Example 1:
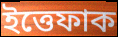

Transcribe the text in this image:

ইত্তেফাক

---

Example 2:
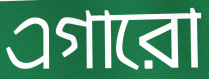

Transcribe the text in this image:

এগারো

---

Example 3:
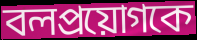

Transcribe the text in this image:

বলপ্রয়োগকে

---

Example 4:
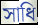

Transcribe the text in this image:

সাধি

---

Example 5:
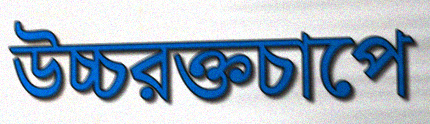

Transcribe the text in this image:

উচ্চরক্তচাপে